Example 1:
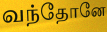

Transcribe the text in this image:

வந்தோனே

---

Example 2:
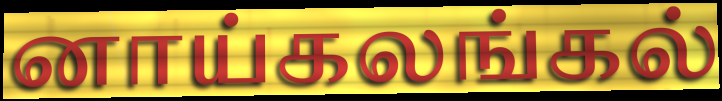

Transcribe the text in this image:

னாய்கலங்கல்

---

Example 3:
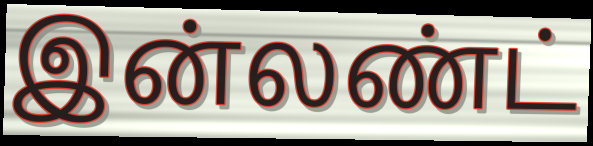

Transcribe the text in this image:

இன்லண்ட்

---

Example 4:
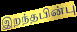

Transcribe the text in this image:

இறந்தபின்பு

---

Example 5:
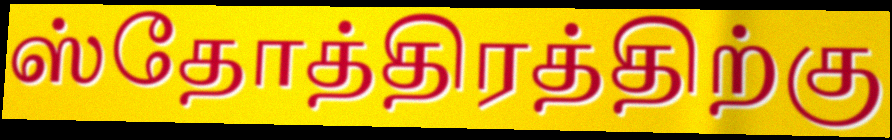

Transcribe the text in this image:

ஸ்தோத்திரத்திற்கு